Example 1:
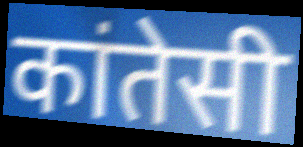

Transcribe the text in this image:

कांतेसी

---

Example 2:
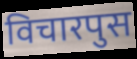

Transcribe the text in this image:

विचारपुस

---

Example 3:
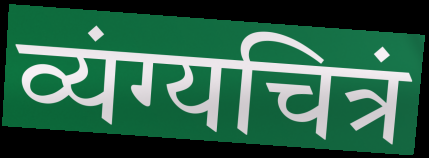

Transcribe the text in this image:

व्यंग्यचित्रं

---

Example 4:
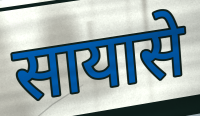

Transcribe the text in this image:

सायासे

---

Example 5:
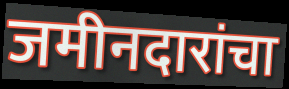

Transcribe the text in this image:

जमीनदारांचा